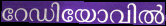
റേഡിയോവിൽ